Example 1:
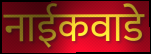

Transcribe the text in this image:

नाईकवाडे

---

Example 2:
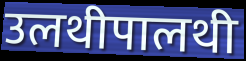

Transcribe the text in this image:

उलथीपालथी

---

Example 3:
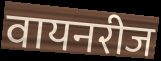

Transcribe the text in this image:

वायनरीज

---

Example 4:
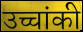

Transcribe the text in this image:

उच्चांकी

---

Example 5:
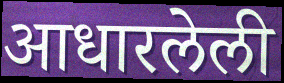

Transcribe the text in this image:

आधारलेली